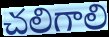
చలిగాలి